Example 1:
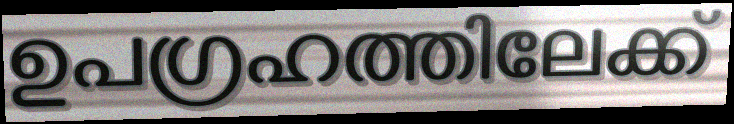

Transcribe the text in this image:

ഉപഗ്രഹത്തിലേക്ക്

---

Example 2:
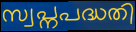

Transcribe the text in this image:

സ്വപ്നപദ്ധതി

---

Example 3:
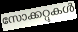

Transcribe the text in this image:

സോക്കറ്റുകൾ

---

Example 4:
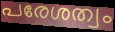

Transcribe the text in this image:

പരേശത്വം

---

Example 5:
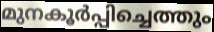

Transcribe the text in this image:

മുനകൂർപ്പിച്ചെത്തും